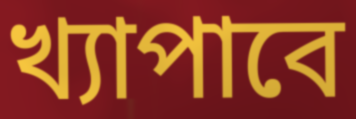
খ্যাপাবে